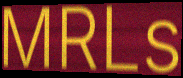
MRLs